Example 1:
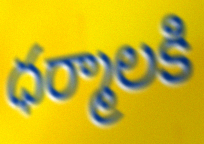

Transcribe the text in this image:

ధర్మాలకి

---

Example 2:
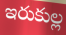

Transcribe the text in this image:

ఇరుకుల్ల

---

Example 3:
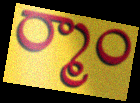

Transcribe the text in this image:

ర్మాం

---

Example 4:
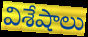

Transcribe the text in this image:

విశేషాలు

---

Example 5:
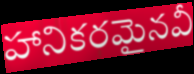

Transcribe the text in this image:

హానికరమైనవీ